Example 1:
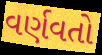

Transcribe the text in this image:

વર્ણવતો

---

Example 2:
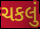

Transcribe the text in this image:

ચકલું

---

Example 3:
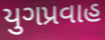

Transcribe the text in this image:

યુગપ્રવાહ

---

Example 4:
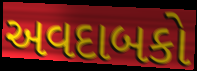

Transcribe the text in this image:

અવદાબકો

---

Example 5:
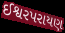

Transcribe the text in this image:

ઈશ્વરપરાયણ